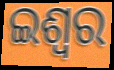
ଇଶ୍ଵର